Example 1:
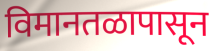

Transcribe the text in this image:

विमानतळापासून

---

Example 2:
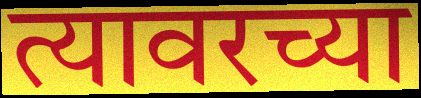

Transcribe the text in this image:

त्यावरच्या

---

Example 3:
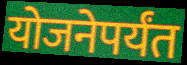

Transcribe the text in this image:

योजनेपर्यंत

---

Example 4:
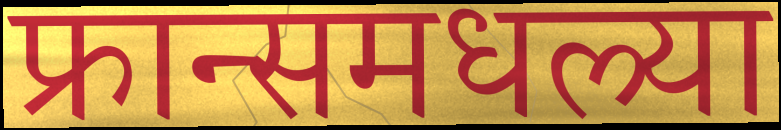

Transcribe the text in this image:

फ्रान्समधल्या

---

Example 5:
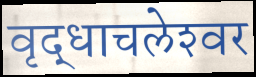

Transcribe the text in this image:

वृद्धाचलेश्वर